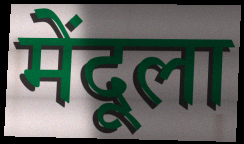
मेंदूला